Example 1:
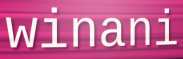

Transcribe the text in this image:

winani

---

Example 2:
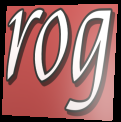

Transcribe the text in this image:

rog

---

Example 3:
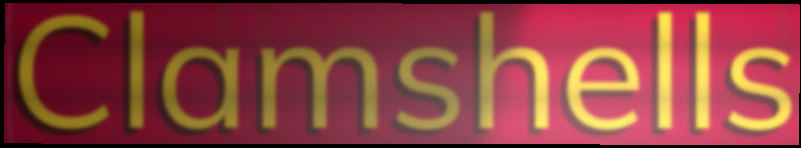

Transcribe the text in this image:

Clamshells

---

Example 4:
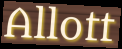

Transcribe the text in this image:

Allott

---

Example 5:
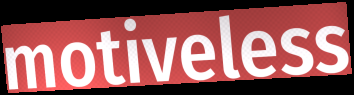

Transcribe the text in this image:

motiveless